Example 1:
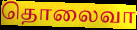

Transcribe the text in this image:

தொலைவா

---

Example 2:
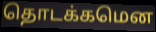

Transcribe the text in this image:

தொடக்கமென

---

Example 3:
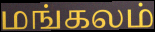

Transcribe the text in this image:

மங்கலம்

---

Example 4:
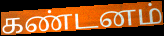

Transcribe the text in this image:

கண்டனம்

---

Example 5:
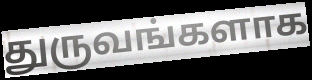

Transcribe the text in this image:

துருவங்களாக